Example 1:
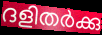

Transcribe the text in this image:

ദളിതർക്കു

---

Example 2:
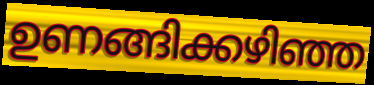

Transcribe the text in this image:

ഉണങ്ങിക്കഴിഞ്ഞ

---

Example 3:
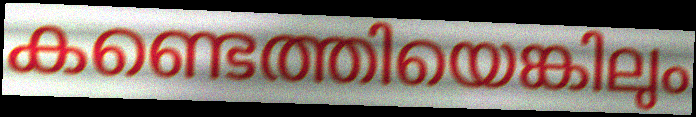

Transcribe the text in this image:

കണ്ടെത്തിയെങ്കിലും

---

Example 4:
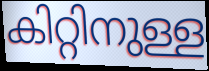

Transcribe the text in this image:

കിറ്റിനുള്ള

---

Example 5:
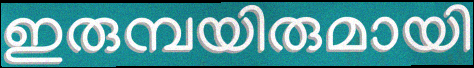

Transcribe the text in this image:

ഇരുമ്പയിരുമായി